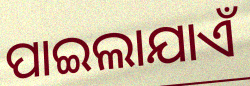
ପାଇଲାଯାଏଁ